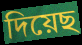
দিয়েছ